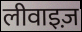
लीवाइज़